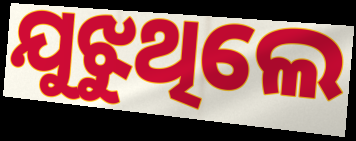
ଯୁଝୁଥିଲେ